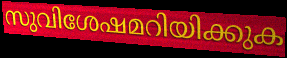
സുവിശേഷമറിയിക്കുക